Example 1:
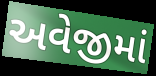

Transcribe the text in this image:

અવેજીમાં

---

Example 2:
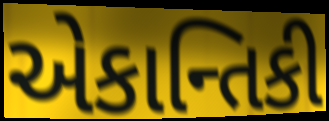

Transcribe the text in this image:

એકાન્તિકી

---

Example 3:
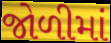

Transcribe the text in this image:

જોળીમાં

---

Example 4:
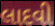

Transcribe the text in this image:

લાદવી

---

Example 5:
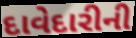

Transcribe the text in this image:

દાવેદારીની